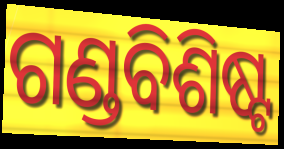
ଗଣ୍ଡବିଶିଷ୍ଟ